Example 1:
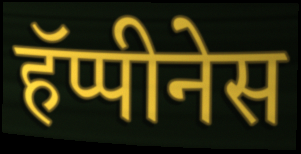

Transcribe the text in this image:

हॅप्पीनेस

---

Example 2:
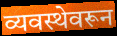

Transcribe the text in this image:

व्यवस्थेवरून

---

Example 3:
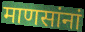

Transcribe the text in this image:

माणसांनां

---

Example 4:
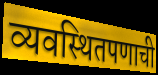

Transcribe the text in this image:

व्यवस्थितपणाची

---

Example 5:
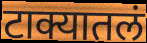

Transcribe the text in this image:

टाक्यातलं